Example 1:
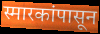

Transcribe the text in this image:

स्मारकांपासून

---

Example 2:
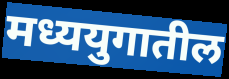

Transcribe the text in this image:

मध्ययुगातील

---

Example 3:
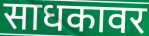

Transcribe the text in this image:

साधकावर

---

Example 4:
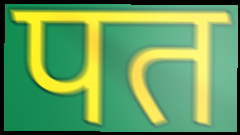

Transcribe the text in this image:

पत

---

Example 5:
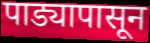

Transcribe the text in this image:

पाड्यापासून